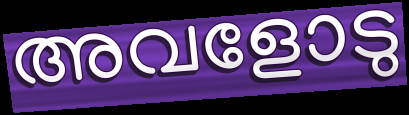
അവളോടു